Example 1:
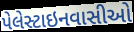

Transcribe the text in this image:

પેલેસ્ટાઇનવાસીઓ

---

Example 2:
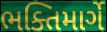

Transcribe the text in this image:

ભક્તિમાર્ગે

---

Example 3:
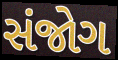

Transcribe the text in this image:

સંજોગ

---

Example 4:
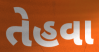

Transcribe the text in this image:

તેહવા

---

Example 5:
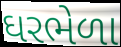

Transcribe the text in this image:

ઘરભેળા